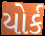
યોર્ક